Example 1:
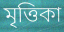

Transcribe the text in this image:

মৃত্তিকা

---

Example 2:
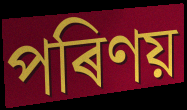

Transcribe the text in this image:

পৰিণয়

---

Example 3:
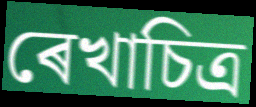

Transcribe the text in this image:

ৰেখাচিত্ৰ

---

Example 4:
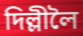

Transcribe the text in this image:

দিল্লীলৈ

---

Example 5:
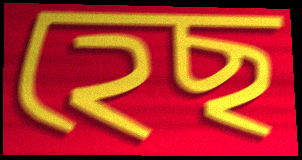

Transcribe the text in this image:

হেছ